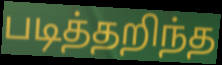
படித்தறிந்த